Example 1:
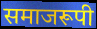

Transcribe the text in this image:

समाजरूपी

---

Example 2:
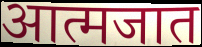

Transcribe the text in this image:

आत्मजात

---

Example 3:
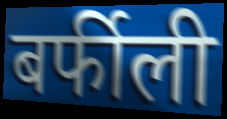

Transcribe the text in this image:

बर्फीली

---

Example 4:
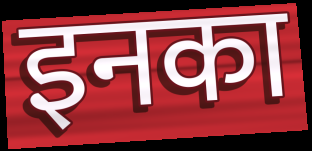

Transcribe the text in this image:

इनका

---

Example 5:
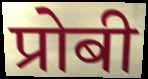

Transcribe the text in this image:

प्रोबी